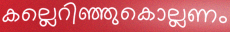
കല്ലെറിഞ്ഞുകൊല്ലണം